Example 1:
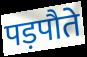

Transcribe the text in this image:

पड़पौते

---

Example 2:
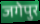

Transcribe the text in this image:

जगेपुर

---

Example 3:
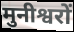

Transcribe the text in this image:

मुनीश्वरों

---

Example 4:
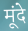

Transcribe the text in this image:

मूंदे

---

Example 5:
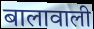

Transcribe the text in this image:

बालावाली